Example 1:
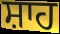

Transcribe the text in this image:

ਸ਼ਾਹ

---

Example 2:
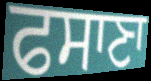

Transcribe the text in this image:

ਫਸਾਣਾ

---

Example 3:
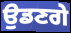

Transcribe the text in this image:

ਉਡਣਗੇ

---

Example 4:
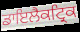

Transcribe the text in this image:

ਡਾਇਲੈਕਟ੍ਰਿਕ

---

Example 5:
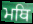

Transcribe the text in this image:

ਮਥਿ